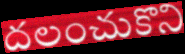
దలంచుకొని